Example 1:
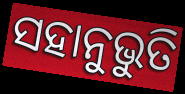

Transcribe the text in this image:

ସହାନୁଭୁତି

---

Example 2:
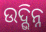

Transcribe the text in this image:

ଉଦ୍ଭିନ୍ନ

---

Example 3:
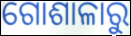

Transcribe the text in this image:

ଗୋଶାଳାରୁ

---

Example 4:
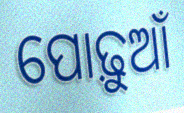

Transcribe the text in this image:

ପୋଢ଼ୁଆଁ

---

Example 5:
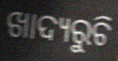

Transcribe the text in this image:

ଖାଦ୍ୟରୁଚି